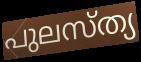
പുലസ്ത്യ